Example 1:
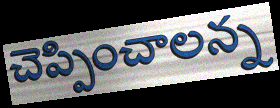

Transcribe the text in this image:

చెప్పించాలన్న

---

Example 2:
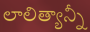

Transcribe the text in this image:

లాలిత్యాన్నీ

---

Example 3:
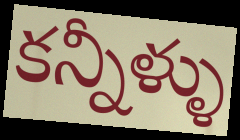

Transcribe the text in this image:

కన్నీళ్ళు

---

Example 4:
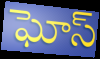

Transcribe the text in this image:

ఘోస్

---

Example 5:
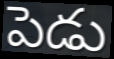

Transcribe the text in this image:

పెడు